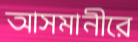
আসমানীরে